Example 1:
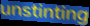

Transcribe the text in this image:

unstinting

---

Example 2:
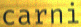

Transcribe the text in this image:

carni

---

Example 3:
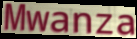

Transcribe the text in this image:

Mwanza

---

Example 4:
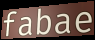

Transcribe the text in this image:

fabae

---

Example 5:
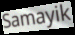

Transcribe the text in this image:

Samayik